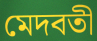
মেদবতী